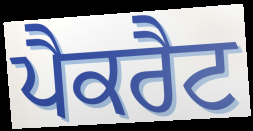
ਪੈਕਰੈਟ